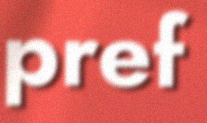
pref